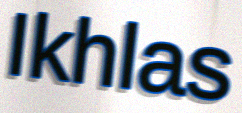
Ikhlas